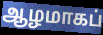
ஆழமாகப்